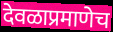
देवळाप्रमाणेच